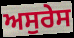
ਅਸੁਰੇਸ